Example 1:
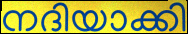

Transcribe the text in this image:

നദിയാക്കി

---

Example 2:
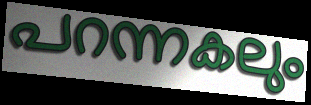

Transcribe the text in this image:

പറന്നകലും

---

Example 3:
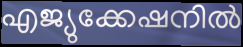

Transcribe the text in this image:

എജ്യുക്കേഷനിൽ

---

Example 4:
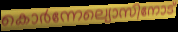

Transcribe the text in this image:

കൊർന്നേല്യൊസിനോട്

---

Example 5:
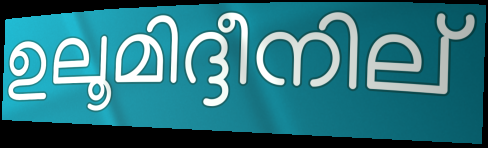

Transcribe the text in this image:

ഉലൂമിദ്ദീനില്